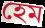
হেম